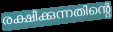
രക്ഷിക്കുന്നതിന്റെ